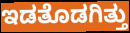
ಇಡತೊಡಗಿತ್ತು